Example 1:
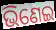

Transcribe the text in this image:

ଭିଣେଇ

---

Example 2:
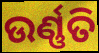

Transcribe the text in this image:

ଉର୍ଣ୍ଣତି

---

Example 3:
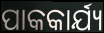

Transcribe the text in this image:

ପାକକାର୍ଯ୍ୟ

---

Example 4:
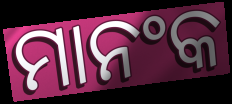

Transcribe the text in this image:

ମାନଂକ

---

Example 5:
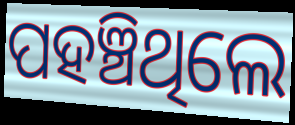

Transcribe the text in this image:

ପହଞ୍ଚିଥିଲେ